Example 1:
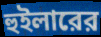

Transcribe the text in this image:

হুইলারের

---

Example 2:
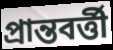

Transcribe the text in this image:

প্রান্তবর্ত্তী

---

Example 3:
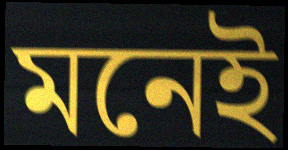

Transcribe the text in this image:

মনেই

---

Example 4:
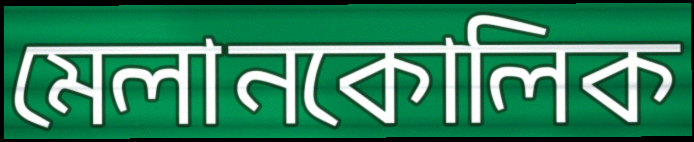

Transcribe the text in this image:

মেলানকোলিক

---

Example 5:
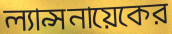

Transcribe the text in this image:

ল্যান্সনায়েকের